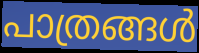
പാത്രങ്ങൾ